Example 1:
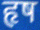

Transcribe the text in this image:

हृष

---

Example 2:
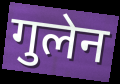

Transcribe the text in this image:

गुलेन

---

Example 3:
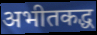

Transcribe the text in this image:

अभीतकद्ध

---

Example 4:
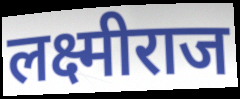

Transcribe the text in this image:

लक्ष्मीराज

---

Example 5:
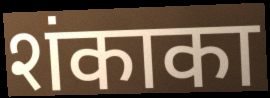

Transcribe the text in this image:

शंकाका